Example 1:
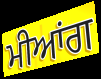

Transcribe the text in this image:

ਮੀਆਂਗ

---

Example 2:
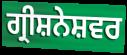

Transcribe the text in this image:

ਗ੍ਰੀਸ਼ਨੇਸ਼ਵਰ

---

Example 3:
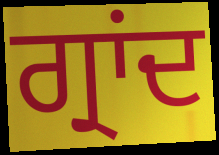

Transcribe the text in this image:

ਗ੍ਰਾਂਦ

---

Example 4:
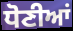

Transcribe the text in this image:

ਧੋਣੀਆਂ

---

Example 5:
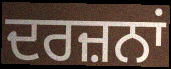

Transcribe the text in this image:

ਦਰਜ਼ਨਾਂ